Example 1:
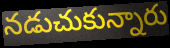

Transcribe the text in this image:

నడుచుకున్నారు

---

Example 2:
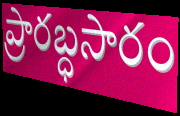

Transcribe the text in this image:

ప్రారబ్ధసారం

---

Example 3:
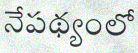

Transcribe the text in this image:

నేపథ్యంలో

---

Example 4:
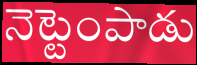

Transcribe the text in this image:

నెట్టెంపాడు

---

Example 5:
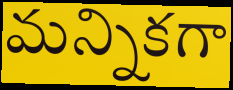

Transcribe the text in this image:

మన్నికగా